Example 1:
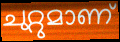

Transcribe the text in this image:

ചുറ്റുമാണ്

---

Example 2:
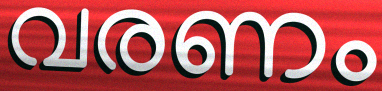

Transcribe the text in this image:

വരണം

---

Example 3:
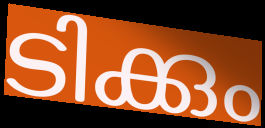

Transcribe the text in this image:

ടിക്കും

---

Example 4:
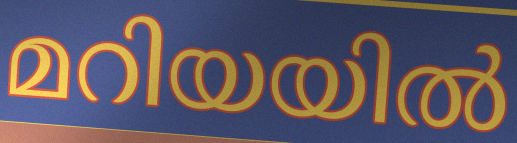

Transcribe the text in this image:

മറിയയിൽ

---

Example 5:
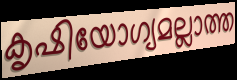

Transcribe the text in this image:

കൃഷിയോഗ്യമല്ലാത്ത